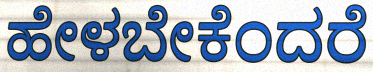
ಹೇಳಬೇಕೆಂದರೆ